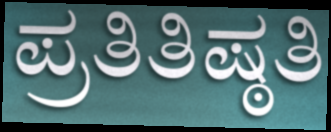
ಪ್ರತಿತಿಷ್ಠತಿ